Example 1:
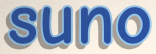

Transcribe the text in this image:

suno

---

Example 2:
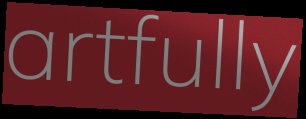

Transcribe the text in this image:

artfully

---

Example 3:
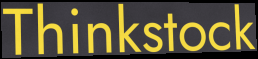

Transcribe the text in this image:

Thinkstock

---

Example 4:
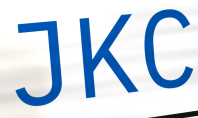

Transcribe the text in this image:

JKC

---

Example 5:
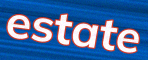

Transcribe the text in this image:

estate